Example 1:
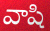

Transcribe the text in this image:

వాషి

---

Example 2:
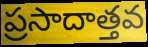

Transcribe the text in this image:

ప్రసాదాత్తవ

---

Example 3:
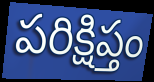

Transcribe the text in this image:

పరిక్షిప్తం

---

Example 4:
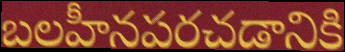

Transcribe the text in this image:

బలహీనపరచడానికి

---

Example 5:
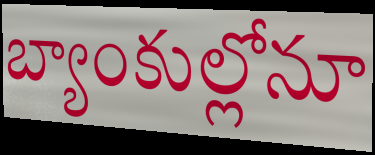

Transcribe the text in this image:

బ్యాంకుల్లోనూ